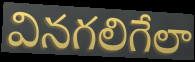
వినగలిగేలా